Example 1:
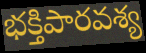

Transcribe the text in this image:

భక్తిపారవశ్య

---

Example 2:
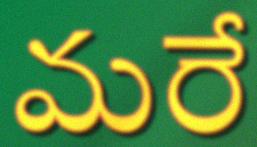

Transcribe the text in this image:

మరే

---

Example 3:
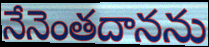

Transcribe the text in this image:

నేనెంతదానను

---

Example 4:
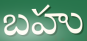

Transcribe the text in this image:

బహు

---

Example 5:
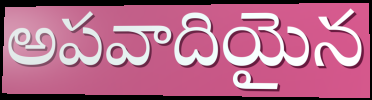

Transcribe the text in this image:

అపవాదియైన